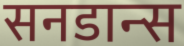
सनडान्स